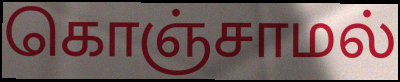
கொஞ்சாமல்